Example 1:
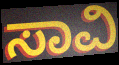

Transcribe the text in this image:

ಸಾವಿ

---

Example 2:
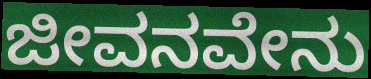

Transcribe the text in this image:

ಜೀವನವೇನು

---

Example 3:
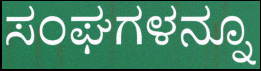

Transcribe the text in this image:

ಸಂಘಗಳನ್ನೂ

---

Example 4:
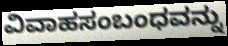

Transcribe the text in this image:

ವಿವಾಹಸಂಬಂಧವನ್ನು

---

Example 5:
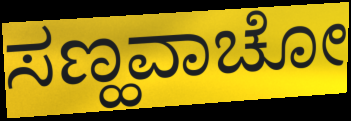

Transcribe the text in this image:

ಸಣ್ಹವಾಚೋ